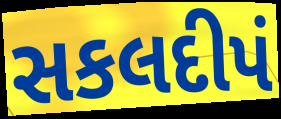
સકલદીપં